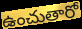
ఉంచుతారో